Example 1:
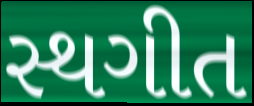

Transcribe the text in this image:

સ્થગીત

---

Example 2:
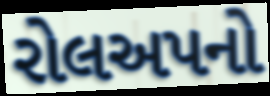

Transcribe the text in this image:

રોલઅપનો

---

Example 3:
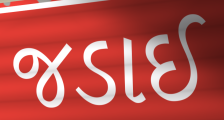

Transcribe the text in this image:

જડાઈ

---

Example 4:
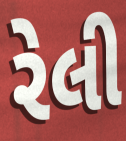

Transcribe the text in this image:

રેલી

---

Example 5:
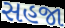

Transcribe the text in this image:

સહજા